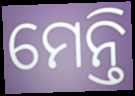
ମେନ୍ତି